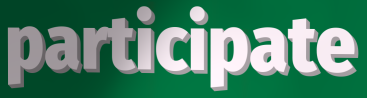
participate